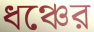
ধঞ্চের